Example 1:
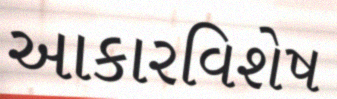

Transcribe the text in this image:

આકારવિશેષ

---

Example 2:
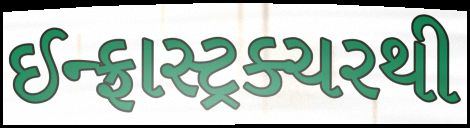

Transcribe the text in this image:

ઈન્ફ્રાસ્ટ્રક્ચરથી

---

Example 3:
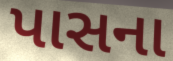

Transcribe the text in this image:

પાસના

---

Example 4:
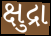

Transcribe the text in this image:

ક્ષુદ્રા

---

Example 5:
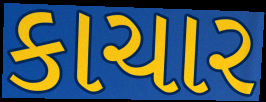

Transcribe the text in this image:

કાચાર